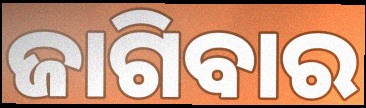
ଜାଗିବାର